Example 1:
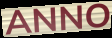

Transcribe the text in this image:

ANNO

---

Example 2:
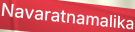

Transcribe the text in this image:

Navaratnamalika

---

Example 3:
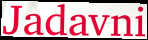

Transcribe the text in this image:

Jadavni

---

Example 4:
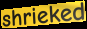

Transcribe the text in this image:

shrieked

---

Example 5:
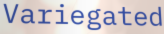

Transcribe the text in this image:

Variegated